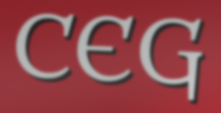
CEG